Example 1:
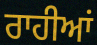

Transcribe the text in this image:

ਰਾਹੀਆਂ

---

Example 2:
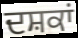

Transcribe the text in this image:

ਦਸ਼ਕਾਂ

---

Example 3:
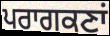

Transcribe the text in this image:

ਪਰਾਗਕਣਾਂ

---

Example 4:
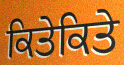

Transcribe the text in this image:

ਕਿਤੇਕਿਤੇ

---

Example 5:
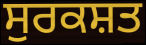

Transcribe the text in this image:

ਸੁਰਕਸ਼ਤ